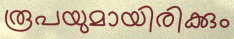
രൂപയുമായിരിക്കും